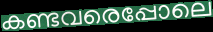
കണ്ടവരെപ്പോലെ